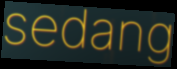
sedang